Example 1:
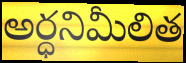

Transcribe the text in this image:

అర్ధనిమీలిత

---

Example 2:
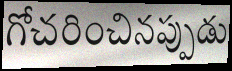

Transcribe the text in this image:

గోచరించినప్పుడు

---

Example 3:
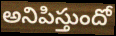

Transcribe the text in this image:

అనిపిస్తుందో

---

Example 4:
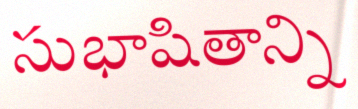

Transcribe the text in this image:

సుభాషితాన్ని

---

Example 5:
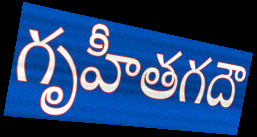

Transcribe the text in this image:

గృహీతగదౌ